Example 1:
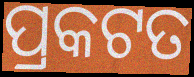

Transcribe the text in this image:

ପ୍ରକଟତ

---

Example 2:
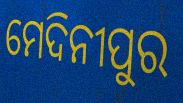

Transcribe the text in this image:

ମେଦିନୀପୁର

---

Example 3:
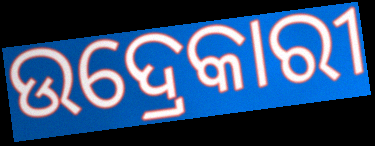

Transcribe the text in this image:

ଉଦ୍ରେକାରୀ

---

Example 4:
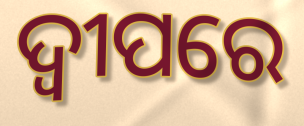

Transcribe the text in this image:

ଦ୍ୱୀପରେ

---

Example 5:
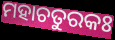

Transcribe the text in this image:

ମହାଚତୁରକଃ